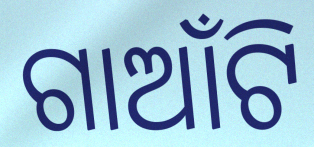
ଗାଆଁଟି